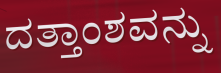
ದತ್ತಾಂಶವನ್ನು